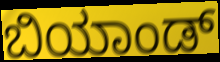
ಬಿಯಾಂಡ್